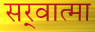
सर्वात्मा